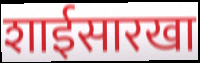
शाईसारखा